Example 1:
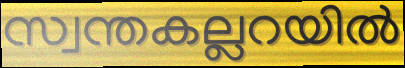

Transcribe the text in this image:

സ്വന്തകല്ലറയിൽ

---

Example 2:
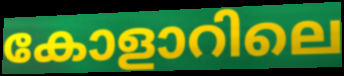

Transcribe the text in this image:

കോളാറിലെ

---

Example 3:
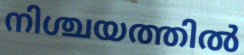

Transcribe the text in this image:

നിശ്ചയത്തിൽ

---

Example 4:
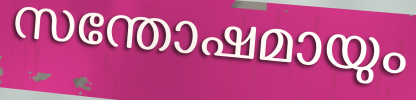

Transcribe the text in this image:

സന്തോഷമായും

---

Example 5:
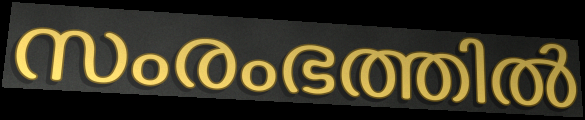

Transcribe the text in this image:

സംരംഭത്തിൽ